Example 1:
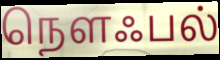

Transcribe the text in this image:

நௌஃபல்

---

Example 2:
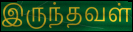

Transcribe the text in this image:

இருந்தவள்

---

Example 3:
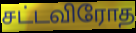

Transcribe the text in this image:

சட்டவிரோத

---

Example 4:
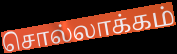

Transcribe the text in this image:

சொல்லாக்கம்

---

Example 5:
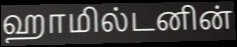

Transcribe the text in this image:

ஹாமில்டனின்